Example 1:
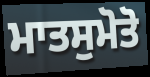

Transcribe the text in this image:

ਮਾਤਸੁਮੋਤੋ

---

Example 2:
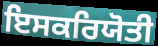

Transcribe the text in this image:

ਇਸਕਰਿਯੋਤੀ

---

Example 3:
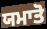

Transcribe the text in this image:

ਯਮਾਤੋ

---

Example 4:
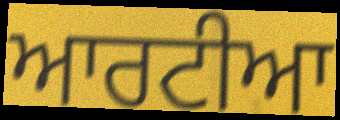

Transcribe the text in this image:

ਆਰਟੀਆ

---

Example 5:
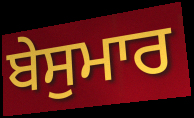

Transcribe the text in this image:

ਬੇਸੁਮਾਰ